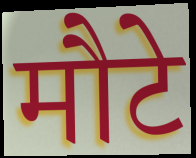
मौटे